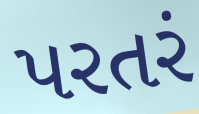
પરતરં